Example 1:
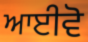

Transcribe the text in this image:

ਆਈਵੋ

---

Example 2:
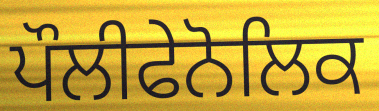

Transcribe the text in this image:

ਪੌਲੀਫੇਨੋਲਿਕ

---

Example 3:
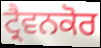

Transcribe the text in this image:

ਟ੍ਰੈਵਨਕੋਰ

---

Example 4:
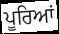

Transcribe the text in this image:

ਪੂਰਿਆਂ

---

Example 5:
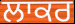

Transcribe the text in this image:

ਲਾਕਰ